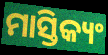
ମାସ୍ତିକ୍ୟଂ